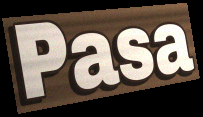
Pasa